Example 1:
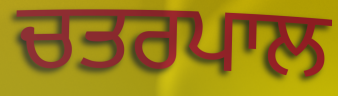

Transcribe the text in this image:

ਚਤਰਪਾਲ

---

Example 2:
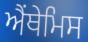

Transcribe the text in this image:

ਐਂਥੇਮਿਸ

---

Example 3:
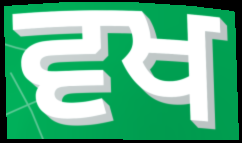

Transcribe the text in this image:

ਵਖ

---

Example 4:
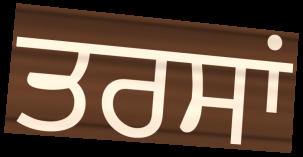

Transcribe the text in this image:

ਤਰਸਾਂ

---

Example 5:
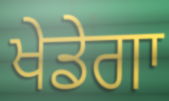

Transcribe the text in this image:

ਖੇਡੇਗਾ